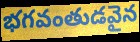
భగవంతుడవైన